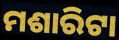
ମଶାରିଟା